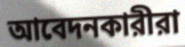
আবেদনকারীরা